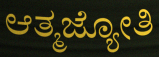
ಆತ್ಮಜ್ಯೋತಿ